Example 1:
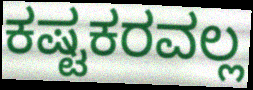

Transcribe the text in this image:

ಕಷ್ಟಕರವಲ್ಲ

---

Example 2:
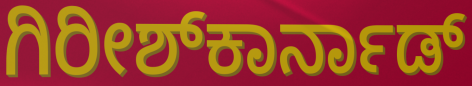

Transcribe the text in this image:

ಗಿರೀಶ್‌ಕಾರ್ನಾಡ್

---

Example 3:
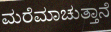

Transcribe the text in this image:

ಮರೆಮಾಚುತ್ತಾನೆ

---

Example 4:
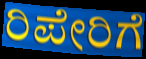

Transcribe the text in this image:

ರಿಪೇರಿಗೆ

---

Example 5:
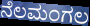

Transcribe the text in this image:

ನೆಲಮಂಗಲ